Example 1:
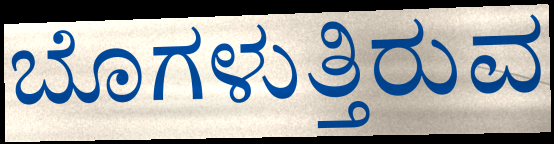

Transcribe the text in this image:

ಬೊಗಳುತ್ತಿರುವ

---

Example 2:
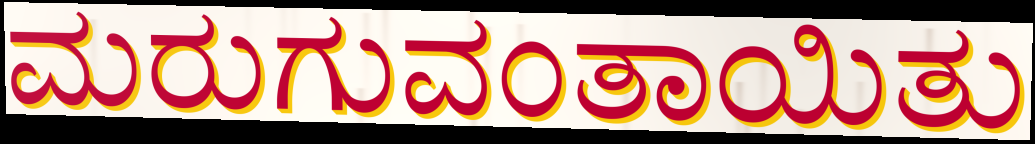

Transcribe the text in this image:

ಮರುಗುವಂತಾಯಿತು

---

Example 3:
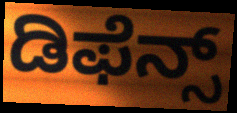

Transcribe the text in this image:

ಡಿಫೆನ್ಸ್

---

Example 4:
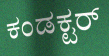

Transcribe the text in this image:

ಕಂಡಕ್ಟರ್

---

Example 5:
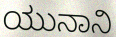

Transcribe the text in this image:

ಯುನಾನಿ